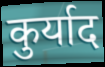
कुर्याद